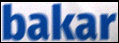
bakar